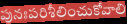
పునఃపరిశీలించుకోవాలి